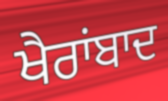
ਖੈਰਾਂਬਾਦ